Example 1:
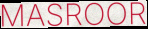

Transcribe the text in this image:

MASROOR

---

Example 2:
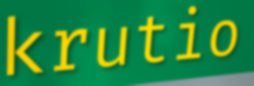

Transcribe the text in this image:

krutio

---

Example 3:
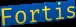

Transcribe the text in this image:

Fortis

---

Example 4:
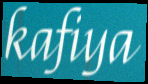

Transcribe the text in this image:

kafiya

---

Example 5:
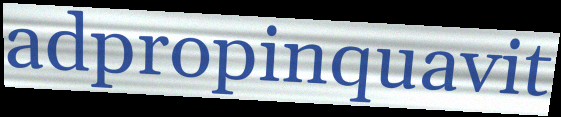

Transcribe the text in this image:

adpropinquavit